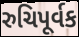
રુચિપૂર્વક